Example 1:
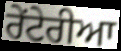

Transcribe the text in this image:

ਰੇਂਟੇਰੀਆ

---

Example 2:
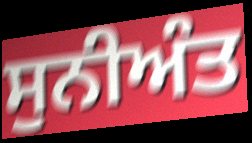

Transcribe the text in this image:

ਸੁਨੀਅੰਤ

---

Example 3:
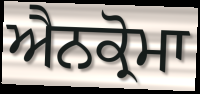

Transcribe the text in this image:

ਐਨਕ੍ਰੋਮਾ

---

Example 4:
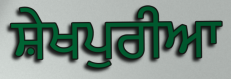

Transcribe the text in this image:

ਸ਼ੇਖਪੁਰੀਆ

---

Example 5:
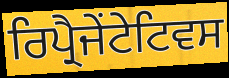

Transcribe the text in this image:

ਰਿਪ੍ਰੈਜੇਂਟੇਟਿਵਸ